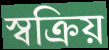
স্বক্রিয়